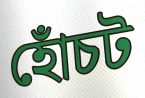
হোঁচট